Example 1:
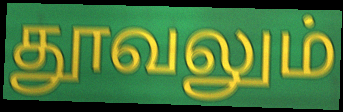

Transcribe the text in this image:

தூவலும்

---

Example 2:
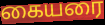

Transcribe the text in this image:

கையரை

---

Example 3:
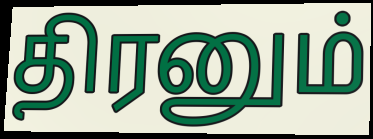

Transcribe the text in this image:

திரனும்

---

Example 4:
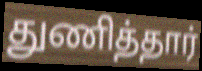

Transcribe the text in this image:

துணித்தார்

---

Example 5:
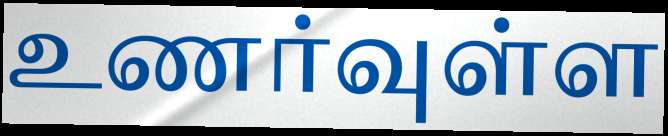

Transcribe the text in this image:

உணர்வுள்ள